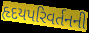
હૃદયપરિવર્તનની